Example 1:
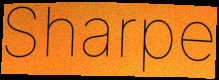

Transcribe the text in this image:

Sharpe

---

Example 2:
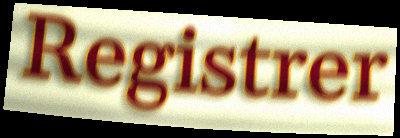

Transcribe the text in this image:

Registrer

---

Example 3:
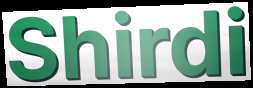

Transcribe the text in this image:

Shirdi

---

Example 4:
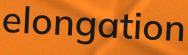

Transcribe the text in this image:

elongation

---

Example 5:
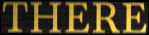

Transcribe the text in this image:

THERE